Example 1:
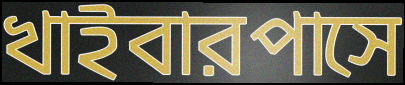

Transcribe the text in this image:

খাইবারপাসে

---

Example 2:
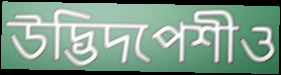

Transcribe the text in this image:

উদ্ভিদপেশীও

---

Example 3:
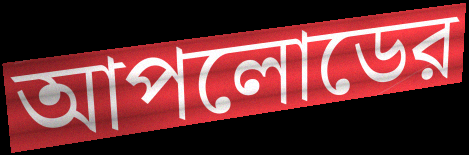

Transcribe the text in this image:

আপলোডের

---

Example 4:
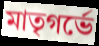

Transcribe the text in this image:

মাতৃগর্ভে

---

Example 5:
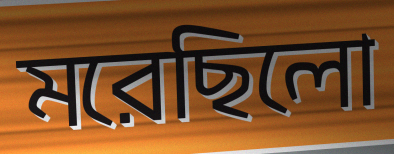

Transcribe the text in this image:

মরেছিলো